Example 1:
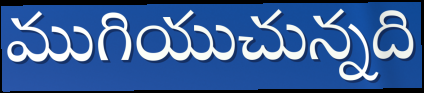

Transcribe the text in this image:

ముగియుచున్నది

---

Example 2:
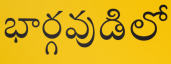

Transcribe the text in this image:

భార్గవుడిలో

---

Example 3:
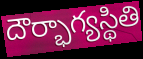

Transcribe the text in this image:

దౌర్భాగ్యస్థితి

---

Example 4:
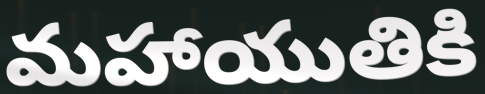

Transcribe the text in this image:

మహాయుతికి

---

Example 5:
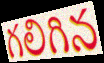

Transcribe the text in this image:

గలిగిన